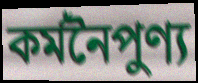
কর্মনৈপুণ্য